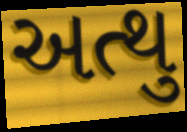
અત્થુ